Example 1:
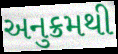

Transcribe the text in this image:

અનુક્રમથી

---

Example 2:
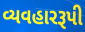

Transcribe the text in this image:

વ્યવહારરૂપી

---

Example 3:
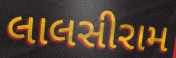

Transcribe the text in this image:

લાલસીરામ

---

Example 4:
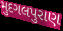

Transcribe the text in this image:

મુદગલપુરાણ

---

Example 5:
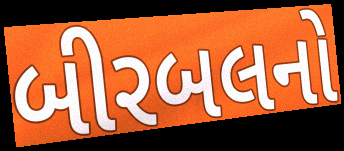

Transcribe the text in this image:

બીરબલનો